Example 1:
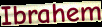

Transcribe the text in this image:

Ibrahem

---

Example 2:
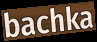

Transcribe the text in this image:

bachka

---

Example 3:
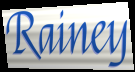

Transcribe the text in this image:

Rainey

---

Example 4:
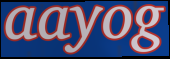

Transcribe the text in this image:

aayog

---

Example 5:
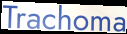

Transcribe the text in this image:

Trachoma